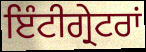
ਇੰਟੀਗ੍ਰੇਟਰਾਂ